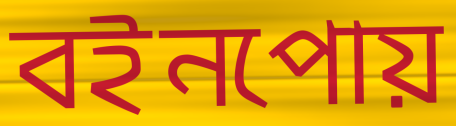
বইনপোয়